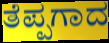
ತೆಪ್ಪಗಾದ